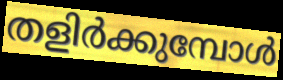
തളിർക്കുമ്പോൾ